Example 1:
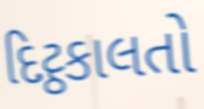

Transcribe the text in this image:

દિટ્ઠકાલતો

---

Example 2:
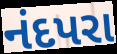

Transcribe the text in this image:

નંદપરા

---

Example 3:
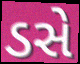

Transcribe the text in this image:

ડસે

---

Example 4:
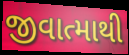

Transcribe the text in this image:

જીવાત્માથી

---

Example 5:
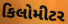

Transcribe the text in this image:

કિલોમીટર